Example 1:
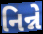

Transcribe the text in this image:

નિન્ને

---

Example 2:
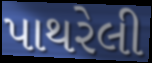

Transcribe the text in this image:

પાથરેલી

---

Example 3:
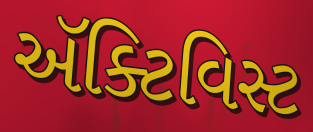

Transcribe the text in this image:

ઍક્ટિવિસ્ટ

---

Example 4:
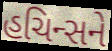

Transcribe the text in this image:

હચિન્સને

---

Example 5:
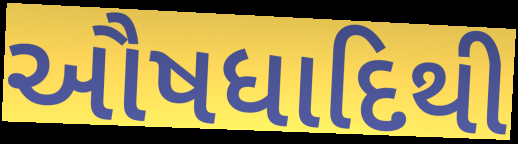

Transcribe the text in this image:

ઔષધાદિથી